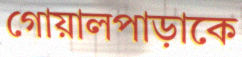
গোয়ালপাড়াকে